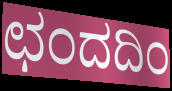
ಛಂದದಿಂ